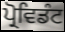
ਪ੍ਰੋਵਿਡੰਟ